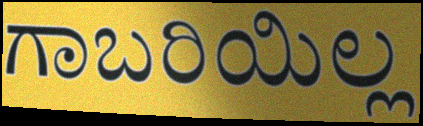
ಗಾಬರಿಯಿಲ್ಲ